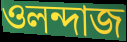
ওলন্দাজ